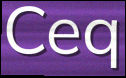
Ceq